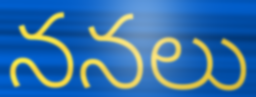
ననలు